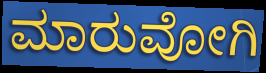
ಮಾರುವೋಗಿ